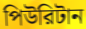
পিউরিটান